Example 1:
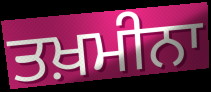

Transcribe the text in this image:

ਤਖ਼ਮੀਨਾ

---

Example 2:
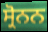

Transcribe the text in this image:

ਸ੍ਰੋਨਨ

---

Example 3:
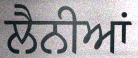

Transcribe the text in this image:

ਲੈਨੀਆਂ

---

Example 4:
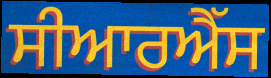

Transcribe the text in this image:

ਸੀਆਰਐੱਸ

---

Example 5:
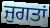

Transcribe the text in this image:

ਜੁਗਤਾਂ